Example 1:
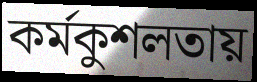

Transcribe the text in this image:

কর্মকুশলতায়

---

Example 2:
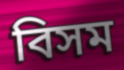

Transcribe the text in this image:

বিসম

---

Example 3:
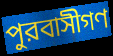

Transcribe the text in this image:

পুরবাসীগণ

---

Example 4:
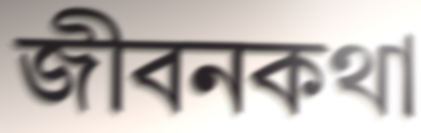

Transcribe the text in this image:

জীবনকথা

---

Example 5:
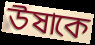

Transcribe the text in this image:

উষাকে